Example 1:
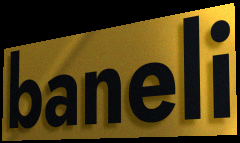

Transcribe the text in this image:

baneli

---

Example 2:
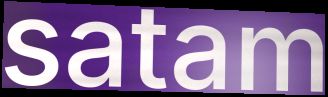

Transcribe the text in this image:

satam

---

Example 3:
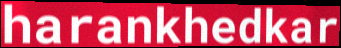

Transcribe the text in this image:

harankhedkar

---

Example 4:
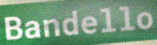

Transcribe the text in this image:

Bandello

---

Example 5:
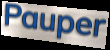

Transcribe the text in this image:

Pauper